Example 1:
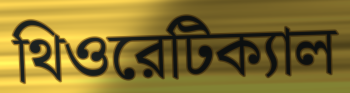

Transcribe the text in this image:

থিওরেটিক্যাল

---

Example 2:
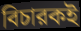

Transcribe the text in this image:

বিচারকই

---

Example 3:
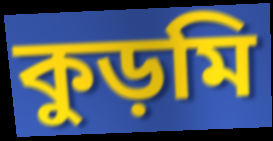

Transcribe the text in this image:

কুড়মি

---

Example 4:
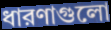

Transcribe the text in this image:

ধারণাগুলো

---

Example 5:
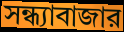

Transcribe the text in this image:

সন্ধ্যাবাজার